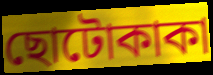
ছোটোকাকা